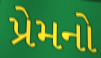
પ્રેમનો